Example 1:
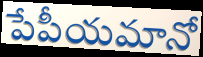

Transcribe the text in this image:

పేపీయమానో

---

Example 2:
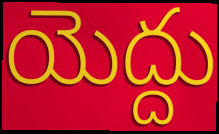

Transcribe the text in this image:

యెద్దు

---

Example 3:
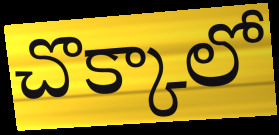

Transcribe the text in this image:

చొక్కాలో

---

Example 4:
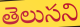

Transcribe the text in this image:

తెలుసని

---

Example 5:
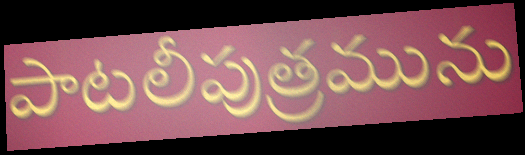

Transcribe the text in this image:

పాటలీపుత్రమును